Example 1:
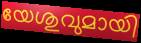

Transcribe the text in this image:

യേശുവുമായി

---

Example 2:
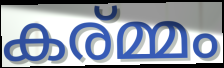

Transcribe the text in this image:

കര്മ്മം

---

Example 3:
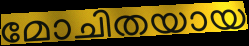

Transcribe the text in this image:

മോചിതയായ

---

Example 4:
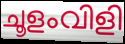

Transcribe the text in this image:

ചൂളംവിളി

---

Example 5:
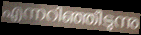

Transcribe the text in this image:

എന്നറിഞ്ഞീടുന്നു